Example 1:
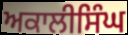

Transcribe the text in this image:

ਅਕਾਲੀਸਿੰਘ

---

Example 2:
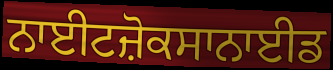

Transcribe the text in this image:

ਨਾਈਟਜ਼ੋਕਸਾਨਾਈਡ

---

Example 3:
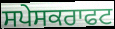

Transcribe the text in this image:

ਸਪੇਸਕਰਾਫਟ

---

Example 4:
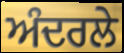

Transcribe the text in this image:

ਅੰਦਰਲੇ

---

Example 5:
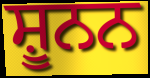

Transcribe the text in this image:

ਸ਼ੂਨਨ